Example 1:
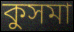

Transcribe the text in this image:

কুসমা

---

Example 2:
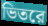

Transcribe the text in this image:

ভিতরে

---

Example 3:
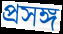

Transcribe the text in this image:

প্রসঙ্গ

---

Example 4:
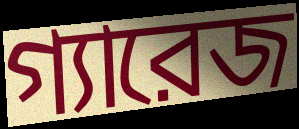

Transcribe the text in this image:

গ্যারেজ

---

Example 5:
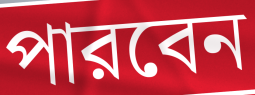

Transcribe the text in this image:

পারবেন